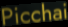
Picchai